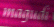
magudi